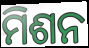
ମିଶନ